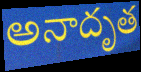
అనాదృత